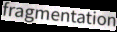
fragmentation